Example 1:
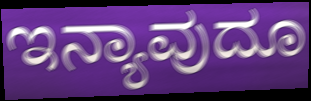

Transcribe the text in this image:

ಇನ್ಯಾವುದೂ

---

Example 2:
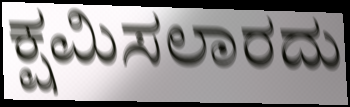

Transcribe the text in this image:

ಕ್ಷಮಿಸಲಾರದು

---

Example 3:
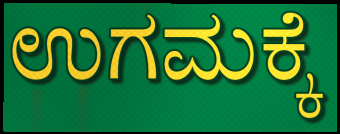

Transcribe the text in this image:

ಉಗಮಕ್ಕೆ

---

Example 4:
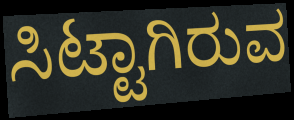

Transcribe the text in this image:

ಸಿಟ್ಟಾಗಿರುವ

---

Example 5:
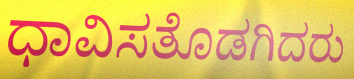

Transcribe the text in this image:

ಧಾವಿಸತೊಡಗಿದರು